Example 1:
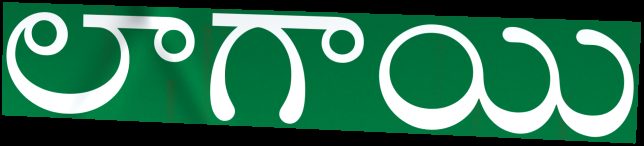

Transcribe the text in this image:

లాగాయి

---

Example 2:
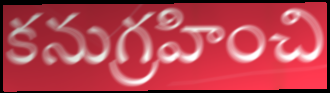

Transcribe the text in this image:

కనుగ్రహించి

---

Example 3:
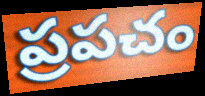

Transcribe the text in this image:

ప్రపచం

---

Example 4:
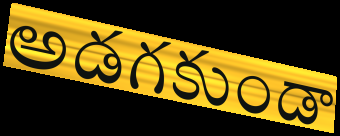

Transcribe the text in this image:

అడగకుండా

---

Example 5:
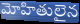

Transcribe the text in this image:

మోహితులైన